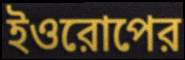
ইওরোপের